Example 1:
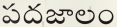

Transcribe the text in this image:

పదజాలం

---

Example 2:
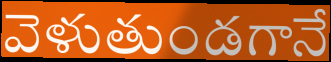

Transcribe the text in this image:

వెళుతుండగానే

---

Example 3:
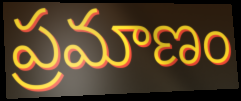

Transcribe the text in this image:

ప్రమాణం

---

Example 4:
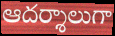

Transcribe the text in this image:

ఆదర్శాలుగా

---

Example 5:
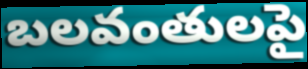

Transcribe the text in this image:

బలవంతులపై